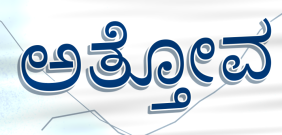
ಅತ್ತೋವ